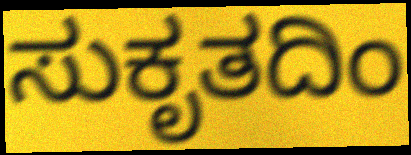
ಸುಕೃತದಿಂ